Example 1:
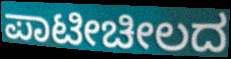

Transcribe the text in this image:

ಪಾಟೀಚೀಲದ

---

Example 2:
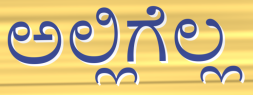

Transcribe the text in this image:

ಅಲ್ಲಿಗೆಲ್ಲ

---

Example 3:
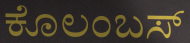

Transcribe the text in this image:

ಕೊಲಂಬಸ್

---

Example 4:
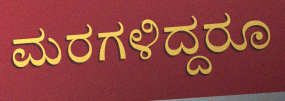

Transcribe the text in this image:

ಮರಗಳಿದ್ದರೂ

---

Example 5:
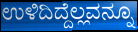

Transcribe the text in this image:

ಉಳಿದಿದ್ದೆಲ್ಲವನ್ನೂ